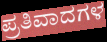
ಪ್ರತಿವಾದಗಳ